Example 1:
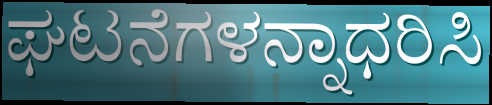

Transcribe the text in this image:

ಘಟನೆಗಳನ್ನಾಧರಿಸಿ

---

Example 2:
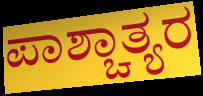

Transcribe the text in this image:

ಪಾಶ್ಚಾತ್ಯರ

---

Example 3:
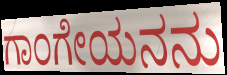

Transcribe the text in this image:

ಗಾಂಗೇಯನನು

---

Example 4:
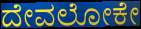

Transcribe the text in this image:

ದೇವಲೋಕೇ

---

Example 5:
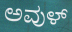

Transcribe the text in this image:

ಅವುಳ್